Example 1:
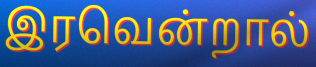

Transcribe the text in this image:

இரவென்றால்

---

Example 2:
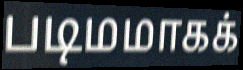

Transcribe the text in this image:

படிமமாகக்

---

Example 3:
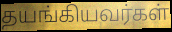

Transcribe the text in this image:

தயங்கியவர்கள்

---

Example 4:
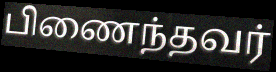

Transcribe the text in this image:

பிணைந்தவர்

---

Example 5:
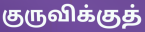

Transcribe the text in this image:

குருவிக்குத்